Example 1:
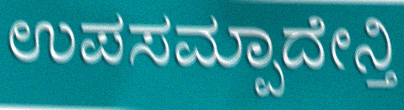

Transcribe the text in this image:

ಉಪಸಮ್ಪಾದೇನ್ತಿ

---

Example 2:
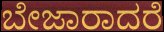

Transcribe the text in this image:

ಬೇಜಾರಾದರೆ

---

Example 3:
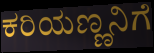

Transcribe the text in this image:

ಕರಿಯಣ್ಣನಿಗೆ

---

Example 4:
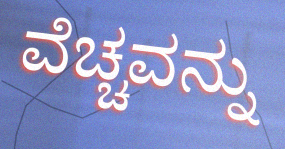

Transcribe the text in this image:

ವೆಚ್ಚವನ್ನು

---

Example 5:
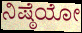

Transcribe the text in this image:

ನಿಷ್ಠೆಯೋ